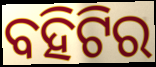
ବହିଟିର